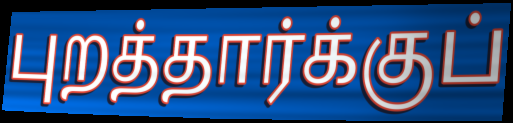
புறத்தார்க்குப்